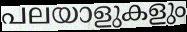
പലയാളുകളും